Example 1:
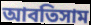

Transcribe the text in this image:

আবতিসাম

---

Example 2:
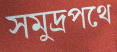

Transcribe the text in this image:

সমুদ্রপথে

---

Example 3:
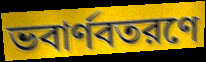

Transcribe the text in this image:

ভবার্ণবতরণে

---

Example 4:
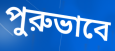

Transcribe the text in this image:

পুরুভাবে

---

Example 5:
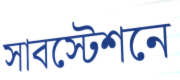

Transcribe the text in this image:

সাবস্টেশনে